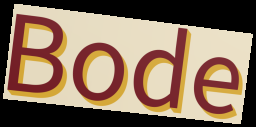
Bode